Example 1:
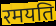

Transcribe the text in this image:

रमयति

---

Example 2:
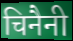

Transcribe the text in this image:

चिनैनी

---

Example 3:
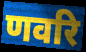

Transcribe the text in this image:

णवरि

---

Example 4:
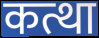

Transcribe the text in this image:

कत्था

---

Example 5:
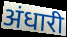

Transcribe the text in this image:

अंधारी